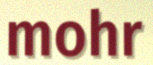
mohr